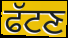
ਫੱਟਣ